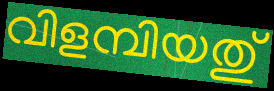
വിളമ്പിയതു്